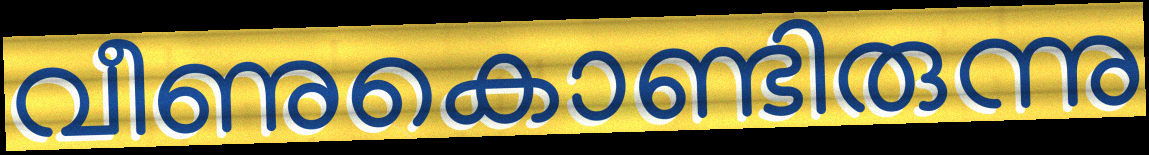
വീണുകൊണ്ടിരുന്നു